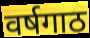
वर्षगाठ